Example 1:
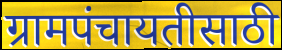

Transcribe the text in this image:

ग्रामपंचायतीसाठी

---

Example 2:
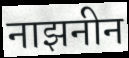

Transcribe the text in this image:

नाझनीन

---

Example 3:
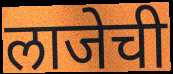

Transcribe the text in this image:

लाजेची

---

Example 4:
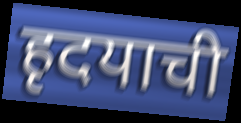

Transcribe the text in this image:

हृदयाची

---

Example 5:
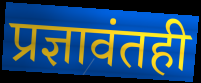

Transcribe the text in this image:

प्रज्ञावंतही